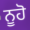
ਨੂਹੋ